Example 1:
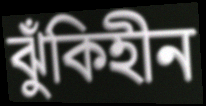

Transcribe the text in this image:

ঝুঁকিহীন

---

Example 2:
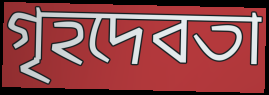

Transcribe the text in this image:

গৃহদেবতা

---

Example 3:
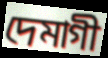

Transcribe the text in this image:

দেমাগী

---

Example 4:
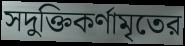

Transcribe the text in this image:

সদুক্তিকর্ণামৃতের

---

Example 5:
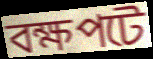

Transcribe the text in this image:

বক্ষপটে